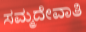
ಸಮ್ಮದೇವಾತಿ